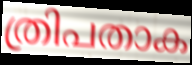
ത്രിപതാക